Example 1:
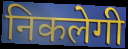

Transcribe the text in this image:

निकलेगी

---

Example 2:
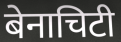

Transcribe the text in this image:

बेनाचिटी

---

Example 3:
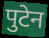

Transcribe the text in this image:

पुटेन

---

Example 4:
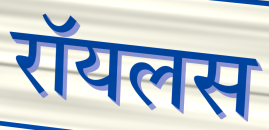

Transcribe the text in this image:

रॉयलस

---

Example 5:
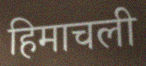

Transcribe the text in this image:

हिमाचली